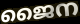
ജൈന